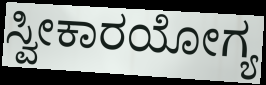
ಸ್ವೀಕಾರಯೋಗ್ಯ